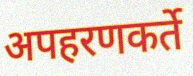
अपहरणकर्ते